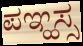
ಪಞ್ಹಸ್ಸ